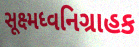
સૂક્ષ્મધ્વનિગ્રાહક